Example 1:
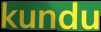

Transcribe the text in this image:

kundu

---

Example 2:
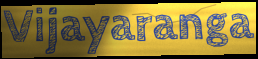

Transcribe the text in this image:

Vijayaranga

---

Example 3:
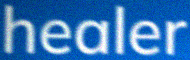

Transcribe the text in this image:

healer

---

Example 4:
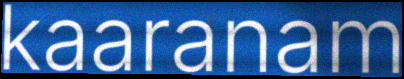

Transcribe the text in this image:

kaaranam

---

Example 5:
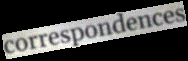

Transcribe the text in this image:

correspondences